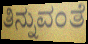
ತಿನ್ನುವಂತೆ